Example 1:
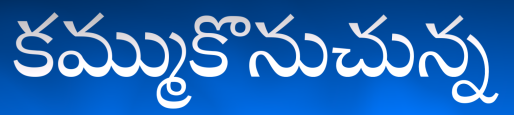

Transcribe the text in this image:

కమ్ముకొనుచున్న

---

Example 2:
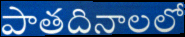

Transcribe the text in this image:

పాతదినాలలో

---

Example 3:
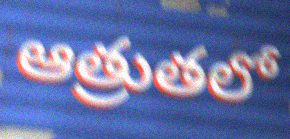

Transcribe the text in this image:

ఆత్రుతలో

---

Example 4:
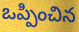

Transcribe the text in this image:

ఒప్పించిన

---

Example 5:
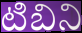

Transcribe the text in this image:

టిబిని